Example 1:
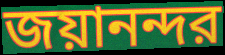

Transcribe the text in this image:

জয়ানন্দর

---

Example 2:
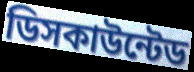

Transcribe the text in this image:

ডিসকাউন্টেড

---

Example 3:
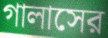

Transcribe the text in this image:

গালাসের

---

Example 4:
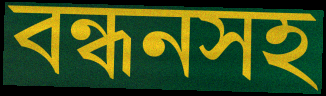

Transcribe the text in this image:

বন্ধনসহ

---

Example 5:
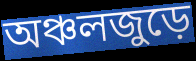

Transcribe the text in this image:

অঞ্চলজুড়ে